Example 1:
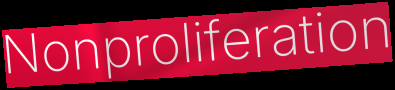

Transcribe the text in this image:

Nonproliferation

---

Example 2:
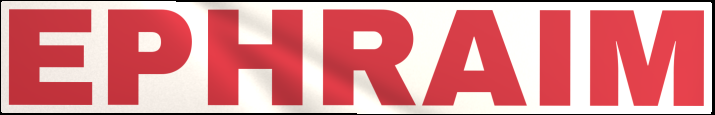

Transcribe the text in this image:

EPHRAIM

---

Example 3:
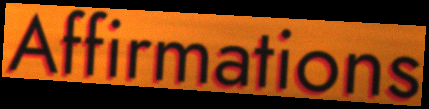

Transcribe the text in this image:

Affirmations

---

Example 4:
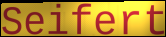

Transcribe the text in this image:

Seifert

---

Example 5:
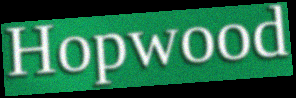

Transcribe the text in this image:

Hopwood